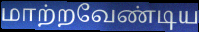
மாற்றவேண்டிய